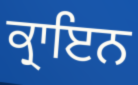
ਕ੍ਰਾਇਨ